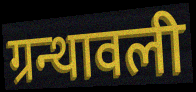
ग्रन्थावली